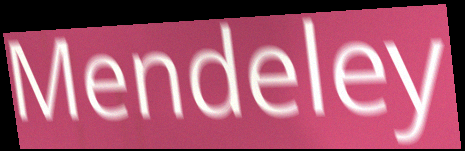
Mendeley